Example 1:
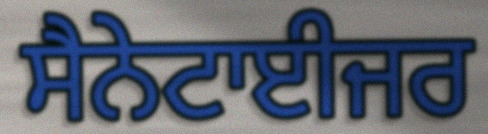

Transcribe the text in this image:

ਸੈਨੇਟਾਈਜਰ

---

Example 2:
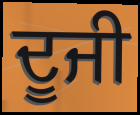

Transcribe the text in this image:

ਦੂਜੀ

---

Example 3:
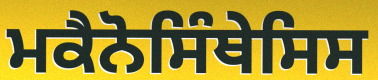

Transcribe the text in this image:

ਮਕੈਨੋਸਿੰਥੇਸਿਸ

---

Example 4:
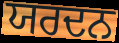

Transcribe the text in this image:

ਯਰਦਨ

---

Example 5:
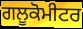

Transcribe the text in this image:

ਗਲੂਕੋਮੀਟਰ